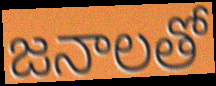
జనాలతో